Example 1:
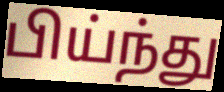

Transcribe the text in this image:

பிய்ந்து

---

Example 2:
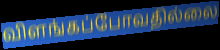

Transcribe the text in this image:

விளங்கப்போவதில்லை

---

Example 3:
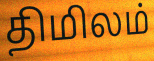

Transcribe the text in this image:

திமிலம்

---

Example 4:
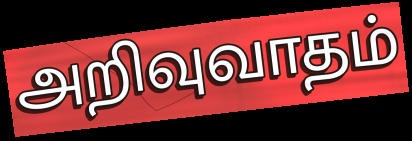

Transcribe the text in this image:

அறிவுவாதம்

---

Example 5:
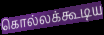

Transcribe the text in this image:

கொல்லக்கூடிய